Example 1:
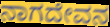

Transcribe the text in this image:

ನಾಗದೇವನ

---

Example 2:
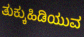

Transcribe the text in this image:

ತುಕ್ಕುಹಿಡಿಯುವ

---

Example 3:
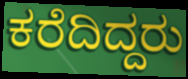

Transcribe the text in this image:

ಕರೆದಿದ್ದರು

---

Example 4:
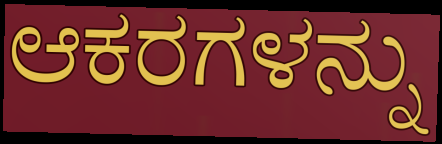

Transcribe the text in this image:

ಆಕರಗಳನ್ನು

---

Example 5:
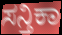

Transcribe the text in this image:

ಸನ್ತಿಕಾ